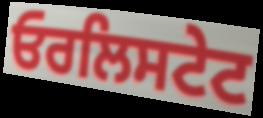
ਓਰਲਿਸਟੇਟ